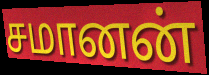
சமானன்